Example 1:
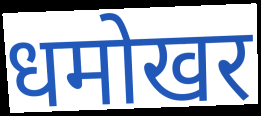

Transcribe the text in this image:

धमोखर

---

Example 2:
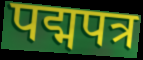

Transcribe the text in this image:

पद्मपत्र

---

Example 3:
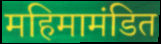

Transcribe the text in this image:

महिमामंडित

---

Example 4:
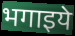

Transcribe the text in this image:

भगाइये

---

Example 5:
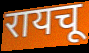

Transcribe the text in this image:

रायचू